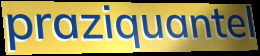
praziquantel